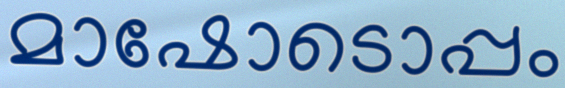
മാഷോടൊപ്പം